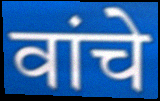
वांचे